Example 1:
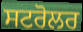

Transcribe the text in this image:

ਸਟਰੋਲਰ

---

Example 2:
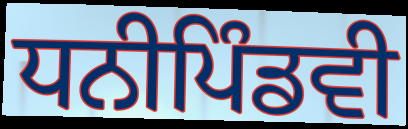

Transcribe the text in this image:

ਧਨੀਪਿੰਡਵੀ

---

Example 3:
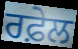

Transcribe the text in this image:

ਰਫ਼ੇਲ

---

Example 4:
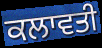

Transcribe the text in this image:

ਕਲਾਵਤੀ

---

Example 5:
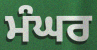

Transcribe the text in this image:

ਮੰਘਰ